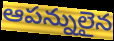
ఆపన్నులైన